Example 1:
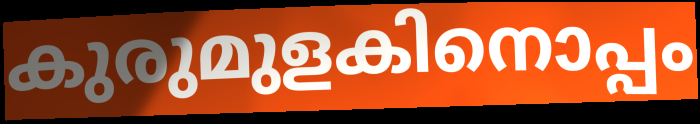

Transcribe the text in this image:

കുരുമുളകിനൊപ്പം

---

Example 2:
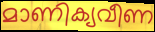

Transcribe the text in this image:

മാണിക്യവീണ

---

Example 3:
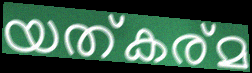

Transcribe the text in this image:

യത്കര്മ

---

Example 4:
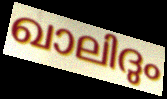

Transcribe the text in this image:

ഖാലിദും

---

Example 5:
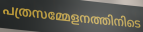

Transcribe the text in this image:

പത്രസമ്മേളനത്തിനിടെ